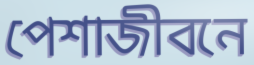
পেশাজীবনে